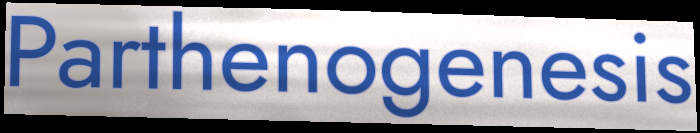
Parthenogenesis